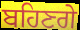
ਬਹਿਣਗੇ